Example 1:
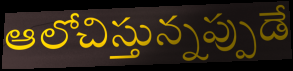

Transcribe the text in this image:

ఆలోచిస్తున్నప్పుడే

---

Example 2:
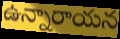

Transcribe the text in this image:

ఉన్నారాయన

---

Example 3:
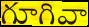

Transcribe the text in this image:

గూగివా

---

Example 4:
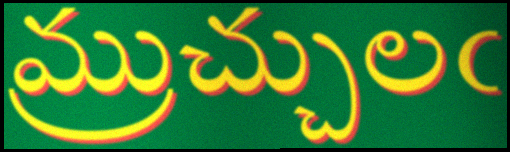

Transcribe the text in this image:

మ్రుచ్చులఁ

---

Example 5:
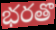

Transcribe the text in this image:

భరతొ